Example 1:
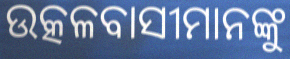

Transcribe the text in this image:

ଉତ୍କଳବାସୀମାନଙ୍କୁ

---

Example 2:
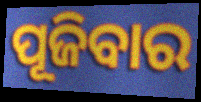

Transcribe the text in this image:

ପୂଜିବାର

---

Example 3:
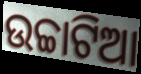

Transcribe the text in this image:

ଉଚ୍ଚାଟିଆ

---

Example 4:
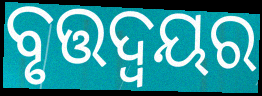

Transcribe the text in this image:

ବୃତ୍ତଦ୍ଵୟର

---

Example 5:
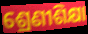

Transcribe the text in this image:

ଶ୍ରେଣୀଶିକ୍ଷା